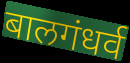
बालगंधर्व